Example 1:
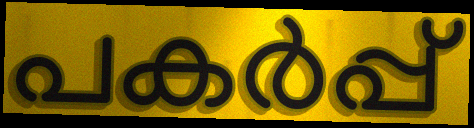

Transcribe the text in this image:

പകർപ്പ്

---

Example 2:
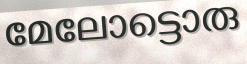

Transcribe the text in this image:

മേലോട്ടൊരു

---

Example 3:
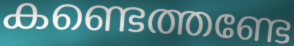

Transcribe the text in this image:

കണ്ടെത്തണ്ടേ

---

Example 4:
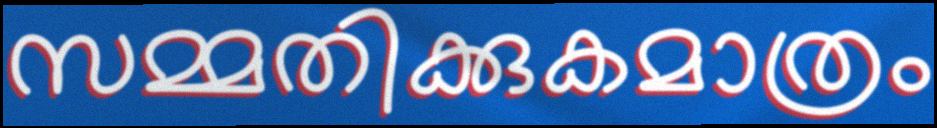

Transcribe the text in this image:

സമ്മതിക്കുകമാത്രം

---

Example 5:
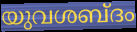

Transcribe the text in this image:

യുവശബ്ദം